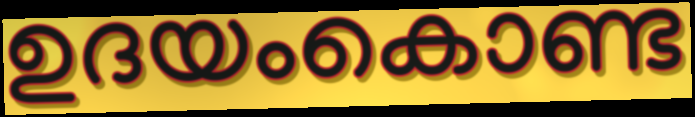
ഉദയംകൊണ്ട